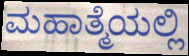
ಮಹಾತ್ಮೆಯಲ್ಲಿ